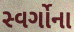
સ્વર્ગોના